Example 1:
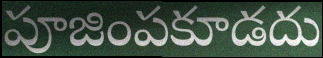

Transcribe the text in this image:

పూజింపకూడదు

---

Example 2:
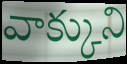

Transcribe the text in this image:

వాక్కుని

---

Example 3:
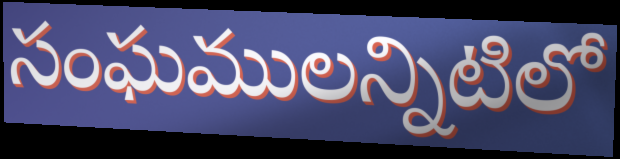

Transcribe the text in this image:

సంఘములన్నిటిలో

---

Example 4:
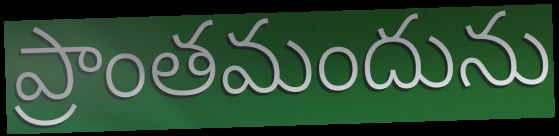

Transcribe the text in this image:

ప్రాంతమందును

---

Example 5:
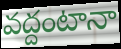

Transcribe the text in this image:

వద్దంటానా